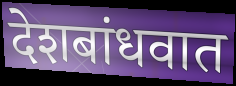
देशबांधवात